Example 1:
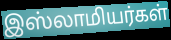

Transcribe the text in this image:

இஸ்லாமியர்கள்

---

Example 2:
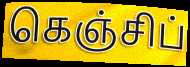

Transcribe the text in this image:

கெஞ்சிப்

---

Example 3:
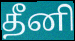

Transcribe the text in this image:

தீனி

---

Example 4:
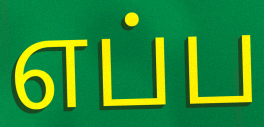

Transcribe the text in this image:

எப்ப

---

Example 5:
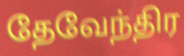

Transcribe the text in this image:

தேவேந்திர